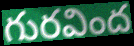
గురవింద